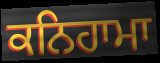
ਕਨਿਹਾਮਾ